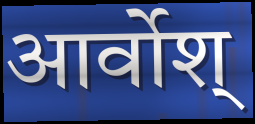
आर्वोश्